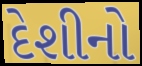
દેશીનો